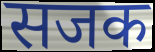
सजक